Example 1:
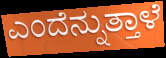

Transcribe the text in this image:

ಎಂದೆನ್ನುತ್ತಾಳೆ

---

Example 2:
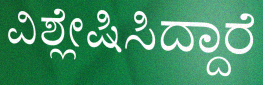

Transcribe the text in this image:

ವಿಶ್ಲೇಷಿಸಿದ್ದಾರೆ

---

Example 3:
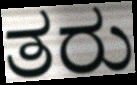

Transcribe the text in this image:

ತರು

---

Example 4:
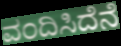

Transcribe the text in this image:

ವಂದಿಸಿದೆನೆ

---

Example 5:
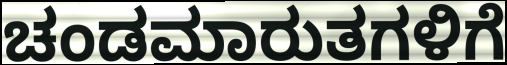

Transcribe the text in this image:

ಚಂಡಮಾರುತಗಳಿಗೆ